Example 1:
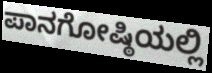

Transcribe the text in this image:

ಪಾನಗೋಷ್ಠಿಯಲ್ಲಿ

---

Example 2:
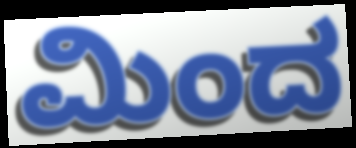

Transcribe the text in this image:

ಮಿಂದ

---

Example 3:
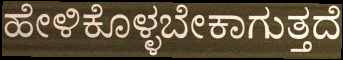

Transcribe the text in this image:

ಹೇಳಿಕೊಳ್ಳಬೇಕಾಗುತ್ತದೆ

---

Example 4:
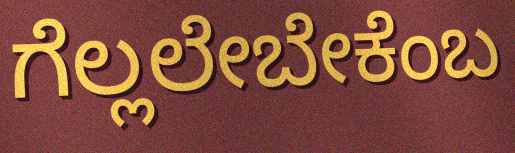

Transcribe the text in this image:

ಗೆಲ್ಲಲೇಬೇಕೆಂಬ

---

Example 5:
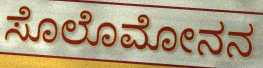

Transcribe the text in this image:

ಸೊಲೊಮೋನನ